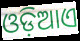
ଓଡ଼ିଆଏ